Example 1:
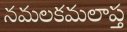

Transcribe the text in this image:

నమలకమలాప్త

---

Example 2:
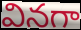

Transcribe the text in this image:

వినగా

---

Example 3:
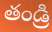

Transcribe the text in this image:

తండ్రి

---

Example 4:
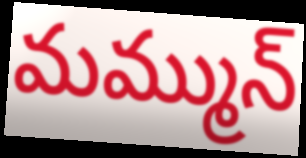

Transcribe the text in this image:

మమ్మున్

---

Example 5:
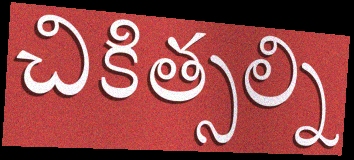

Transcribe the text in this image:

చికిత్సల్ని